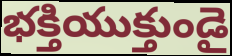
భక్తియుక్తుండై